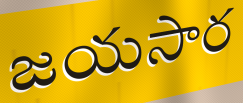
జయసార